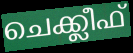
ചെക്ക്ലീഫ്